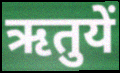
ऋतुयें